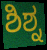
ಶಿಶ್ನ